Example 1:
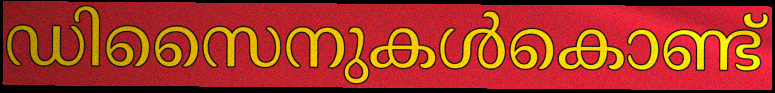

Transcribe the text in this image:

ഡിസൈനുകൾകൊണ്ട്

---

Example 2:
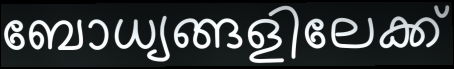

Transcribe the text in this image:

ബോധ്യങ്ങളിലേക്ക്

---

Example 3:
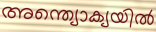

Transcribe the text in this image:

അന്ത്യൊക്യയിൽ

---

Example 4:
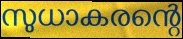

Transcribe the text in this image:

സുധാകരന്റെ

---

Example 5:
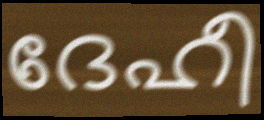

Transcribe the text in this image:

ദേഹീ